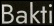
Bakti